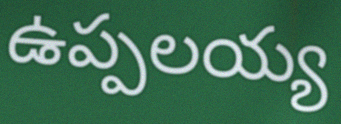
ఉప్పలయ్య